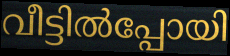
വീട്ടിൽപ്പോയി